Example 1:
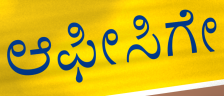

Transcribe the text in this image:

ಆಫೀಸಿಗೇ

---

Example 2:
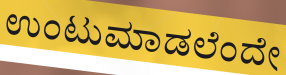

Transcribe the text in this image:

ಉಂಟುಮಾಡಲೆಂದೇ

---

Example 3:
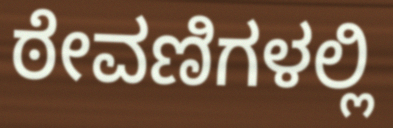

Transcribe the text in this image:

ಠೇವಣಿಗಳಲ್ಲಿ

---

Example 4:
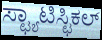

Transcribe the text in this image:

ಸ್ಟ್ಯಾಟಿಸ್ಟಿಕಲ್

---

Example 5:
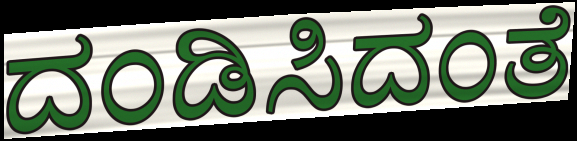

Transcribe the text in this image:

ದಂಡಿಸಿದಂತೆ